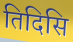
तिदिसि